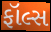
ફૉલ્સ